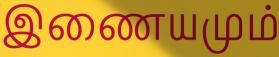
இணையமும்